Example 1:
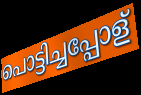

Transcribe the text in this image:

പൊട്ടിച്ചപ്പോള്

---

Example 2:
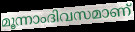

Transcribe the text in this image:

മൂന്നാംദിവസമാണ്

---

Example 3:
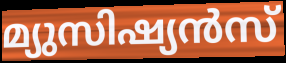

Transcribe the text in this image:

മ്യുസിഷ്യൻസ്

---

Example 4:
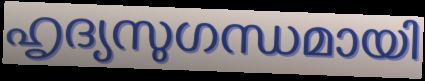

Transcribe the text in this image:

ഹൃദ്യസുഗന്ധമായി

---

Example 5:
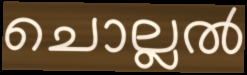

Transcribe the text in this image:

ചൊല്ലൽ